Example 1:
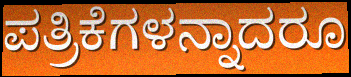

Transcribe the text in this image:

ಪತ್ರಿಕೆಗಳನ್ನಾದರೂ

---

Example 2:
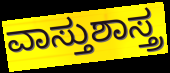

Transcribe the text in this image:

ವಾಸ್ತುಶಾಸ್ತ್ರ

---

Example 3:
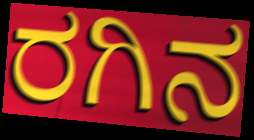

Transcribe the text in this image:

ರಗಿನ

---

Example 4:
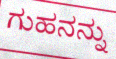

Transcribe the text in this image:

ಗುಹನನ್ನು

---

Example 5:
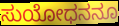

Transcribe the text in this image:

ಸುಯೋಧನನೂ